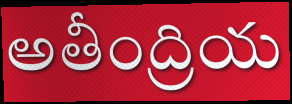
అతీంద్రియ